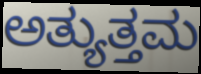
ಅತ್ಯುತ್ತಮ